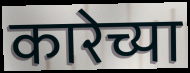
कारेच्या